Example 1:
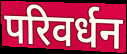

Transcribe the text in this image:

परिवर्धन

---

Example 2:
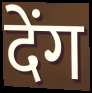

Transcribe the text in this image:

देंग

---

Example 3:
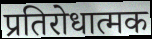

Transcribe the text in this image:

प्रतिरोधात्मक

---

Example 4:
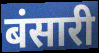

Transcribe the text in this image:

बंसारी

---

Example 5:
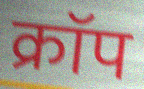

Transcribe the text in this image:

क्रॉप